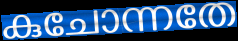
കുചോന്നതേ